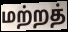
மற்றத்